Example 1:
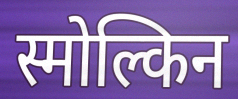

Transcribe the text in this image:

स्मोल्किन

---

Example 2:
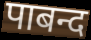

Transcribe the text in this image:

पाबन्द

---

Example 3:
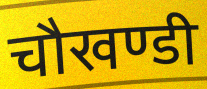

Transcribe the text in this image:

चौखण्डी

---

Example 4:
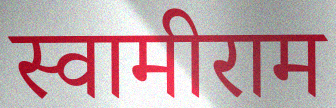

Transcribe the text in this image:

स्वामीराम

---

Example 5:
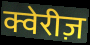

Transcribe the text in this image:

क्वेरीज़